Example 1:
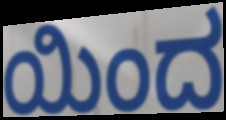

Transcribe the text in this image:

ಯಿಂದ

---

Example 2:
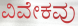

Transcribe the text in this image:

ವಿವೇಕವು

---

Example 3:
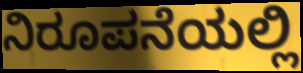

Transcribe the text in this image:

ನಿರೂಪನೆಯಲ್ಲಿ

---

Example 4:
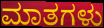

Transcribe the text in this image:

ಮಾತಗಳು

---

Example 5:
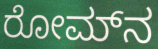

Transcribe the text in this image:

ರೋಮ್‌ನ